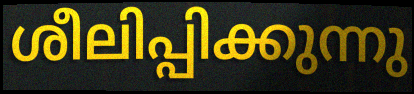
ശീലിപ്പിക്കുന്നു